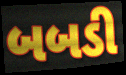
બબડી